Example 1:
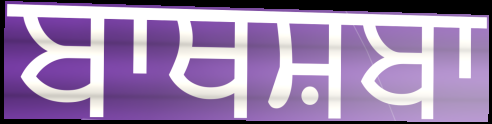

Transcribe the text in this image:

ਬਾਥਸ਼ਬਾ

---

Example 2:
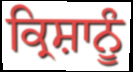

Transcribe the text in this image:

ਕ੍ਰਿਸ਼ਾਨੂੰ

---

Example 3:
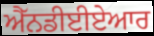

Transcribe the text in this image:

ਐੱਨਡੀਈਏਆਰ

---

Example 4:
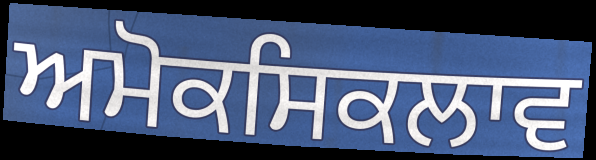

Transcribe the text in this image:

ਅਮੋਕਸਿਕਲਾਵ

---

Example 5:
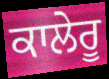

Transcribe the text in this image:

ਕਾਲੇਰੂ